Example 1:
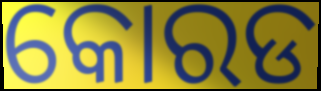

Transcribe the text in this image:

କୋରଡ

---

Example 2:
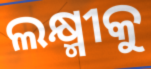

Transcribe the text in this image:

ଲକ୍ଷ୍ମୀକୁ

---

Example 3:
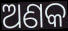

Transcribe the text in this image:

ଅଣକ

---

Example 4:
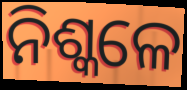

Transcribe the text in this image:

ନିଶ୍କଳେ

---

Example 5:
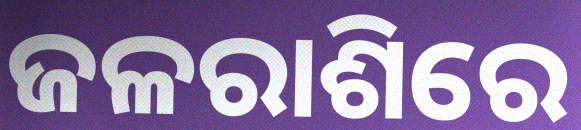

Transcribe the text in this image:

ଜଳରାଶିରେ